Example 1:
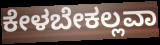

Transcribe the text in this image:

ಕೇಳಬೇಕಲ್ಲವಾ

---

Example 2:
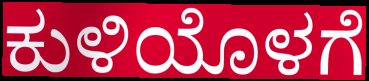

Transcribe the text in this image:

ಕುಳಿಯೊಳಗೆ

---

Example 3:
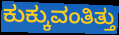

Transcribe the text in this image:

ಕುಕ್ಕುವಂತಿತ್ತು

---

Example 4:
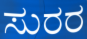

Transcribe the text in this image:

ಸುರರ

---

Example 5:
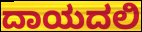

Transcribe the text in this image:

ದಾಯದಲಿ